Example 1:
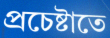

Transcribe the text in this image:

প্রচেষ্টাতে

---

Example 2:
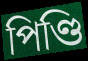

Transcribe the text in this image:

পিণ্ডি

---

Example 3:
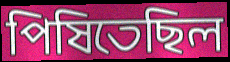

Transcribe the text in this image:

পিষিতেছিল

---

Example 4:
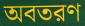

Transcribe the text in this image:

অবতরণ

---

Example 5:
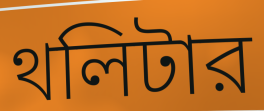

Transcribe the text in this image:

থলিটার